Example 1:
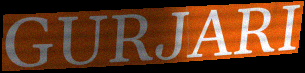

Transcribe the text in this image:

GURJARI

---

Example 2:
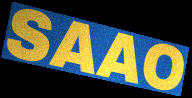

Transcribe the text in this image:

SAAO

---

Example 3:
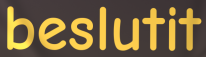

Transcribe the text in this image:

beslutit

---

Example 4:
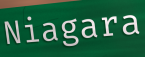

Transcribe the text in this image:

Niagara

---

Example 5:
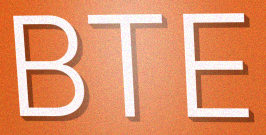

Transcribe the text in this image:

BTE